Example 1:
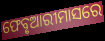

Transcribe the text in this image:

ଫେବୃଆରୀମାସରେ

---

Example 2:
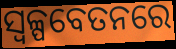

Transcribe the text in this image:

ସ୍ୱଳ୍ପବେତନରେ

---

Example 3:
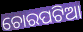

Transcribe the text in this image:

ଚୋରପଟିଆ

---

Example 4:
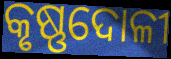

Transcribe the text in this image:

କୃଷ୍ଣଦୋଳୀ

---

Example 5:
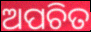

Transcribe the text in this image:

ଅପଚିତ